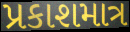
પ્રકાશમાત્ર